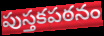
పుస్తకపఠనం